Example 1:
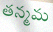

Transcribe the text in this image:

తన్మమ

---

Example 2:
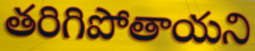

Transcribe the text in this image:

తరిగిపోతాయని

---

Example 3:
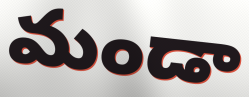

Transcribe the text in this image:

మండా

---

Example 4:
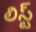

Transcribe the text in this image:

లిస్ట్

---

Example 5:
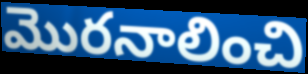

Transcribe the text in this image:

మొరనాలించి